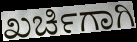
ಖರ್ಚಿಗಾಗಿ